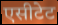
एसीटेट